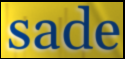
sade